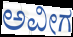
ಅವೀಗ